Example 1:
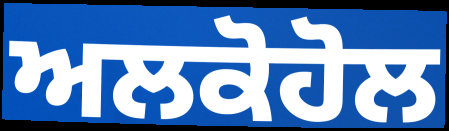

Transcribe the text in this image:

ਅਲਕੋਹੋਲ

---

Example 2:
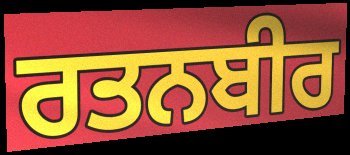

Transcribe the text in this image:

ਰਤਨਬੀਰ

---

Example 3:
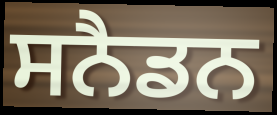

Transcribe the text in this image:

ਸਨੈਡਨ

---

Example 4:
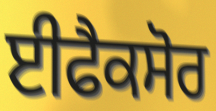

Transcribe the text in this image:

ਈਫੈਕਸੋਰ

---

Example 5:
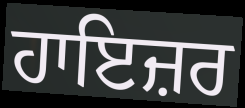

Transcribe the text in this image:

ਹਾਇਜ਼ਰ